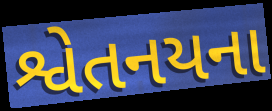
શ્વેતનયના